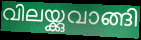
വിലയ്ക്കുവാങ്ങി